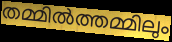
തമ്മിൽത്തമ്മിലും